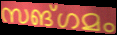
സങ്ഗമം